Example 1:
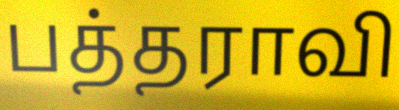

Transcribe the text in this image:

பத்தராவி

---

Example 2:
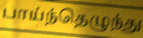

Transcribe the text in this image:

பாய்ந்தெழுந்து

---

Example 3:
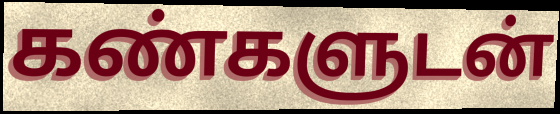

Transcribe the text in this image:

கண்களுடன்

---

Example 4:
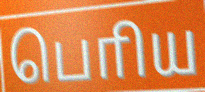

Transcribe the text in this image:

பெரிய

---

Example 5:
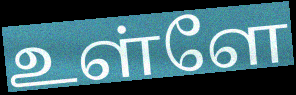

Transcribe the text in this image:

உள்ளே